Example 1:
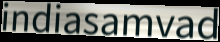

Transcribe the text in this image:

indiasamvad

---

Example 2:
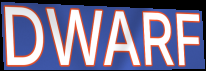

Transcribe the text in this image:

DWARF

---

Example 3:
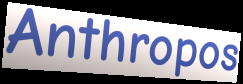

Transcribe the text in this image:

Anthropos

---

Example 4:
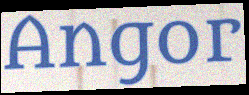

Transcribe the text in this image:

Angor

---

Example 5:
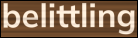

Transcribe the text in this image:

belittling